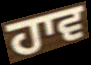
ਹਾਵ